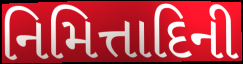
નિમિત્તાદિની